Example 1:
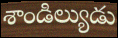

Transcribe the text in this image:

శాండిల్యుడు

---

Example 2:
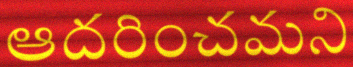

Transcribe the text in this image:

ఆదరించమని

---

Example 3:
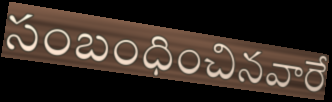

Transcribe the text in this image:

సంబంధించినవారే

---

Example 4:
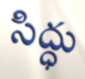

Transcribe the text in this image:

సిద్ధు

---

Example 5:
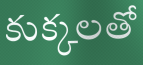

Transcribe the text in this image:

కుక్కలతో